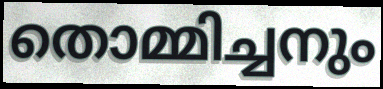
തൊമ്മിച്ചനും